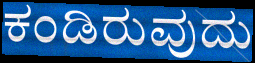
ಕಂಡಿರುವುದು